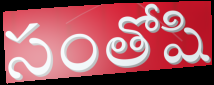
సంతోషి